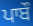
ਪਾਬੌ